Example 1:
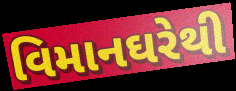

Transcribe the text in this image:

વિમાનઘરેથી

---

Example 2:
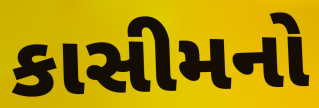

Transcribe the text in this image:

કાસીમનો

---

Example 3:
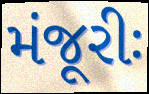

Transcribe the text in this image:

મંજૂરીઃ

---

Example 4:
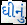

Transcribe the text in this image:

ઘીનું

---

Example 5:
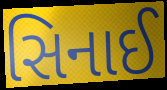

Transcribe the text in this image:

સિનાઈ